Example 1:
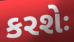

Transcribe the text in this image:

કરશેઃ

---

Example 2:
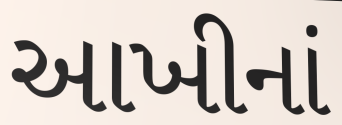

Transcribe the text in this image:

આખીનાં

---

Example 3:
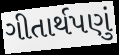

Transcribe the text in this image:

ગીતાર્થપણું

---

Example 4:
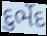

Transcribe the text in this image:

દુર્ભેદ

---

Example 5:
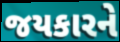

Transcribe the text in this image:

જયકારને